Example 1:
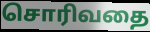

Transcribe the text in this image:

சொரிவதை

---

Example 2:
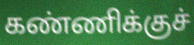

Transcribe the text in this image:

கண்ணிக்குச்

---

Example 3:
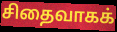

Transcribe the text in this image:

சிதைவாகக்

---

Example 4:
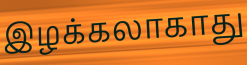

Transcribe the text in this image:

இழக்கலாகாது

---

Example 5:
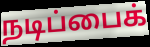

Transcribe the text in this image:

நடிப்பைக்